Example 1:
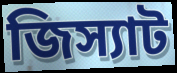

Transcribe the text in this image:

জিস্যাট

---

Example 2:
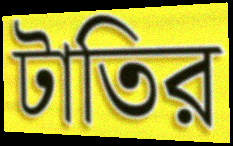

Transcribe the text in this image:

টাতির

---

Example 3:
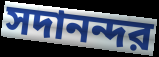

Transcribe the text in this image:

সদানন্দর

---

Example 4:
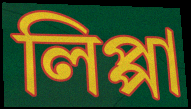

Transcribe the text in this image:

লিপ্পা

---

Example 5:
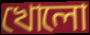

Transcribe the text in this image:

খোলো